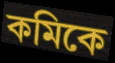
কমিকে